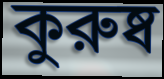
কুরুষ্ব